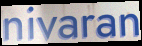
nivaran